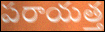
పరాయత్త